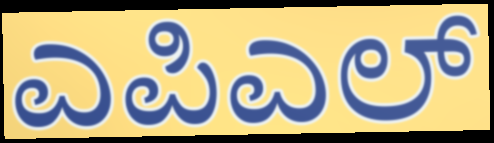
ಎಪಿಎಲ್